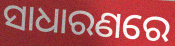
ସାଧାରଣରେ